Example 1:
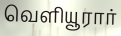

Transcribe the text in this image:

வெளியூரார்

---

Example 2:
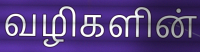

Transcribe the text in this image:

வழிகளின்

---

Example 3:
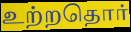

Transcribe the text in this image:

உற்றதொர்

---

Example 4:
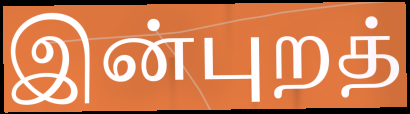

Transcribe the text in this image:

இன்புறத்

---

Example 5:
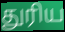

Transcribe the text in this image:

துரிய